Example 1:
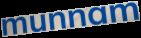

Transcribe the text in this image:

munnam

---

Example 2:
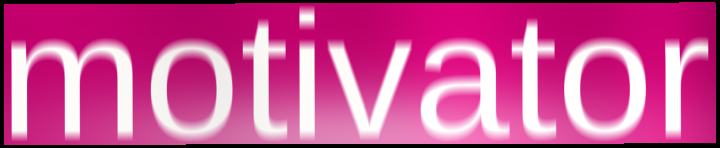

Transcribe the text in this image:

motivator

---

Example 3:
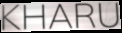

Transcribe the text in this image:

KHARU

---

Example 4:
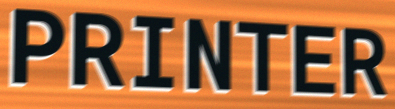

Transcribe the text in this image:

PRINTER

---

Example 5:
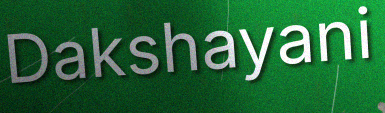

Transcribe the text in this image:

Dakshayani